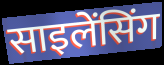
साइलेंसिंग